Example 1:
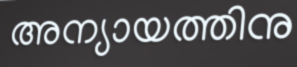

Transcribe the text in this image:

അന്യായത്തിനു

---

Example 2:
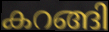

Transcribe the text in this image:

കറങ്ങി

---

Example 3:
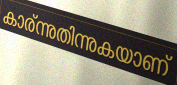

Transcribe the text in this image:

കാര്ന്നുതിന്നുകയാണ്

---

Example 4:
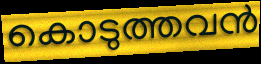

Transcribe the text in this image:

കൊടുത്തവൻ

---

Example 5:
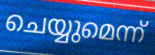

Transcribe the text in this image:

ചെയ്യുമെന്ന്